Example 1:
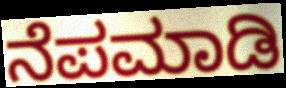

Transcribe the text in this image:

ನೆಪಮಾಡಿ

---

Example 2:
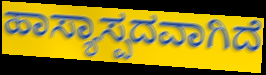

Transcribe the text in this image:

ಹಾಸ್ಯಾಸ್ಪದವಾಗಿದೆ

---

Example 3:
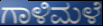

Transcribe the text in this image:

ಗಾಳಿಮಳೆ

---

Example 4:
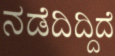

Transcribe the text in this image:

ನಡೆದಿದ್ದಿದೆ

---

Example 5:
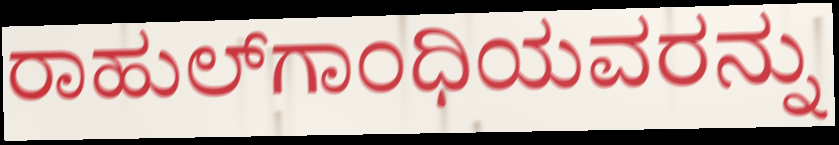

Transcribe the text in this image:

ರಾಹುಲ್‌ಗಾಂಧಿಯವರನ್ನು